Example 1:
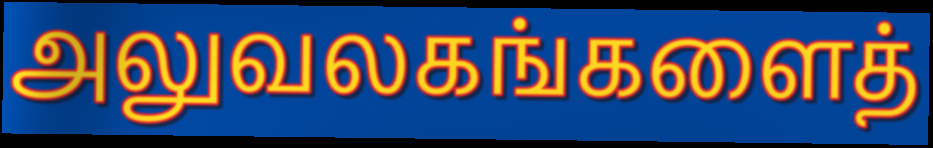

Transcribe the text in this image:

அலுவலகங்களைத்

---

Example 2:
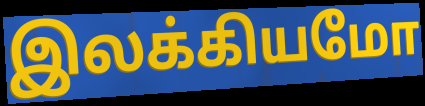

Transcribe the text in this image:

இலக்கியமோ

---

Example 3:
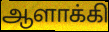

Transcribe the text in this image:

ஆளாக்கி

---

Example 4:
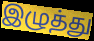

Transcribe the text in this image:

இழுத்து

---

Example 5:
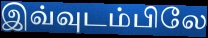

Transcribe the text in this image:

இவ்வுடம்பிலே